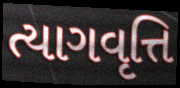
ત્યાગવૃત્તિ